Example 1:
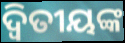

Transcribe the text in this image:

ଦ୍ଵିତୀୟଙ୍କ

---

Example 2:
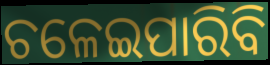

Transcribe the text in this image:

ଚଳେଇପାରିବି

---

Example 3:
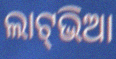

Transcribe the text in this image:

ଲାଟ୍‍ଭିଆ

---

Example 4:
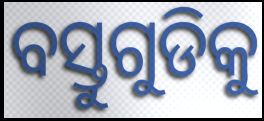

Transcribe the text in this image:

ବସ୍ତୁଗୁଡିକୁ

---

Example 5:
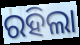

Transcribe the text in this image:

ରହିଲା